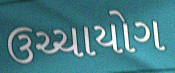
ઉચ્ચાયોગ